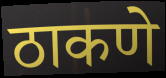
ठाकणे